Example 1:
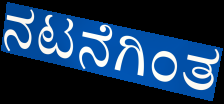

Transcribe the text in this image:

ನಟನೆಗಿಂತ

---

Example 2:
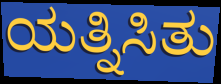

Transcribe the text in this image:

ಯತ್ನಿಸಿತು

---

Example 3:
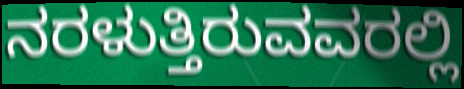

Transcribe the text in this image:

ನರಳುತ್ತಿರುವವರಲ್ಲಿ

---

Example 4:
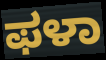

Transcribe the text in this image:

ಫಳಾ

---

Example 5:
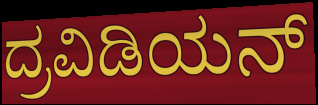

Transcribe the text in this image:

ದ್ರವಿಡಿಯನ್